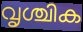
വൃശ്ചിക